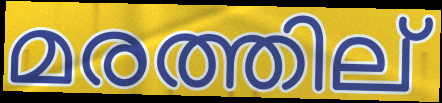
മരത്തില്